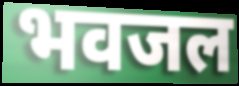
भवजल